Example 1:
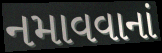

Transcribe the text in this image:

નમાવવાનાં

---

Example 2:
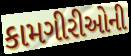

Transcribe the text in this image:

કામગીરીઓની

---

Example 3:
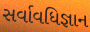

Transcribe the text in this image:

સર્વાવધિજ્ઞાન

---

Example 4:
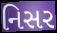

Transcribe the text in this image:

નિસર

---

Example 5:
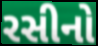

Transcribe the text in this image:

રસીનો